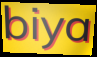
biya